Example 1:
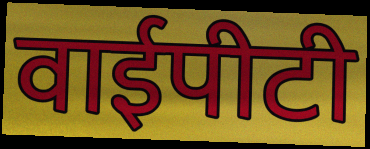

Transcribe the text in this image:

वाईपीटी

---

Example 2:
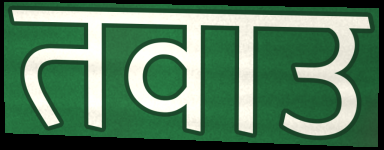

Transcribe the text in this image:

तवाउ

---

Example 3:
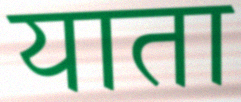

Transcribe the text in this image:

याता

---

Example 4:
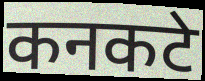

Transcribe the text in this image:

कनकटे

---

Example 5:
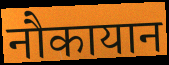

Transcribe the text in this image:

नौकायान